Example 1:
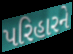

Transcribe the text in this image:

પરિહારને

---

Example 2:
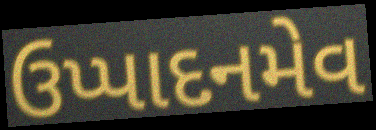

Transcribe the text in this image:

ઉપ્પાદનમેવ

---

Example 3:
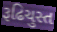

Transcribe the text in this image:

રૂઢિચુસ્ત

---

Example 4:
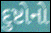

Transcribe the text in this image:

દુષ્ટોનો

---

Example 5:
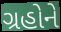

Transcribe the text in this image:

ગ્રહોને